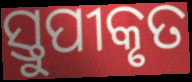
ସ୍ତୁପୀକୃତ